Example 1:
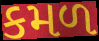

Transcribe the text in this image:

કમળ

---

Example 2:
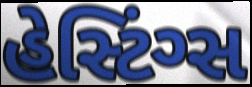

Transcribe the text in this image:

હેસ્ટિંગ્સ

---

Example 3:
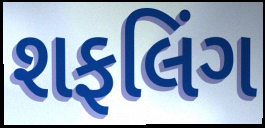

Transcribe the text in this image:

શફલિંગ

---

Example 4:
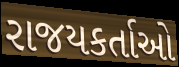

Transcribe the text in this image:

રાજયકર્તાઓ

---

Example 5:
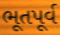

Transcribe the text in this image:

ભૂતપૂર્વ